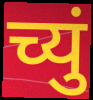
च्युं